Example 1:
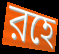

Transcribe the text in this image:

রহে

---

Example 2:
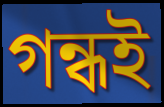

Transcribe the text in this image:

গন্ধই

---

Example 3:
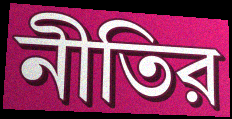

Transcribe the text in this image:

নীতির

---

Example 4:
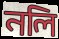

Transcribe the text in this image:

নলি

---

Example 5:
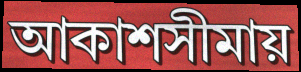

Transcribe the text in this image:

আকাশসীমায়